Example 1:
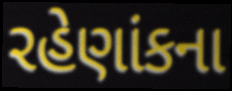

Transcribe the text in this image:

રહેણાંકના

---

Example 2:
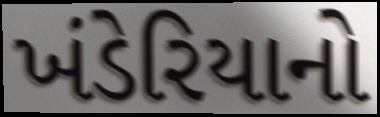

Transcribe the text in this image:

ખંડેરિયાનો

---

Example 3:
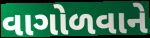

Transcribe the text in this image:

વાગોળવાને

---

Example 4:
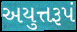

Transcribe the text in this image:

અયુત્તરૂપં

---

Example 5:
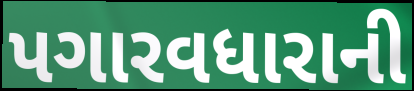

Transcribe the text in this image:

પગારવધારાની